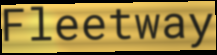
Fleetway